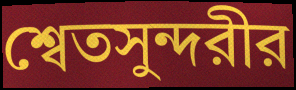
শ্বেতসুন্দরীর